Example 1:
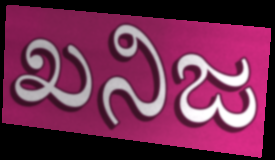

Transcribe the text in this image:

ಖನಿಜ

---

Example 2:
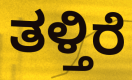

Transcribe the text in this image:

ತಳ್ತಿರೆ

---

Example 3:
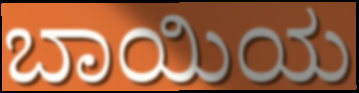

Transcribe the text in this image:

ಬಾಯಿಯ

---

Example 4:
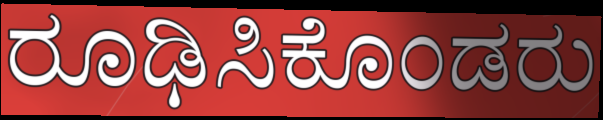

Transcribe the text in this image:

ರೂಢಿಸಿಕೊಂಡರು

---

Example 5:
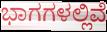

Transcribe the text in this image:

ಭಾಗಗಳಲ್ಲಿವೆ